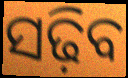
ସଢ଼ିବ